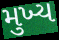
મુખ્ય